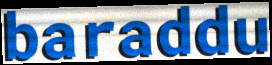
baraddu